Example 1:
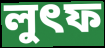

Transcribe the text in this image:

লুৎফ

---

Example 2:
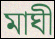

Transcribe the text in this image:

মাঘী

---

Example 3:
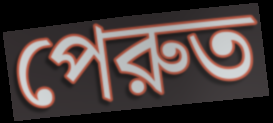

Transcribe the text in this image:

পেরুত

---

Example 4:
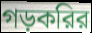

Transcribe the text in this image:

গড়করির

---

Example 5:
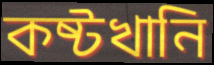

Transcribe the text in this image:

কষ্টখানি